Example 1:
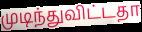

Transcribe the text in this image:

முடிந்துவிட்டதா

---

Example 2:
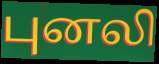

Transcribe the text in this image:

புனலி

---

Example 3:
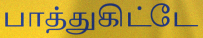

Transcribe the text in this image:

பாத்துகிட்டே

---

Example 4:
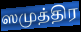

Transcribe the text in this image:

ஸமுத்திர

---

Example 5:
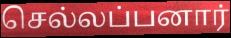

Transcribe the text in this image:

செல்லப்பனார்